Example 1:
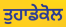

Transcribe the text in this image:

ਤੁਹਾਡੇਕੋਲ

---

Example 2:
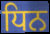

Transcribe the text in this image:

ਧਿਨ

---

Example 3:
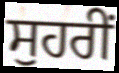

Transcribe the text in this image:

ਸੁਹਰੀਂ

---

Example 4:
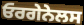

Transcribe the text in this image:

ਓਰਗੇਨੇਲਸ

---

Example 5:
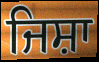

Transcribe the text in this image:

ਜਿਸ਼ਾ